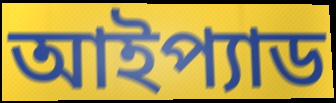
আইপ্যাড